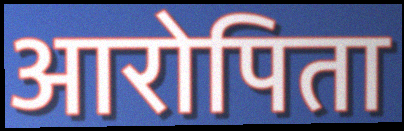
आरोपिता